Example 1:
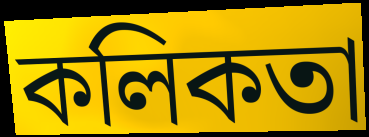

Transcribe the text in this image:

কলিকতা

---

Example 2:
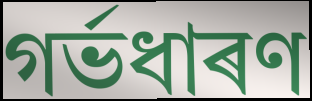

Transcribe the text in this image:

গৰ্ভধাৰণ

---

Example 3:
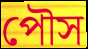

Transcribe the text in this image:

পৌস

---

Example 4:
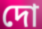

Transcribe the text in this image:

দো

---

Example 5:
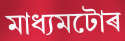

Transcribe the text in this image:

মাধ্যমটোৰ